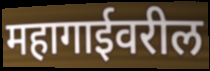
महागाईवरील